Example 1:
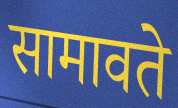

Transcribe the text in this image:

सामावते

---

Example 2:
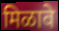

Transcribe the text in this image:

मिळावे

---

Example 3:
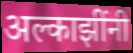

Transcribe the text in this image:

अल्काझींनी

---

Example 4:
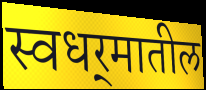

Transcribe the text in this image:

स्वधर्मातील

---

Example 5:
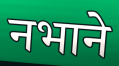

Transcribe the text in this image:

नभाने